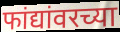
फांद्यांवरच्या